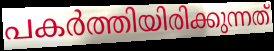
പകർത്തിയിരിക്കുന്നത്